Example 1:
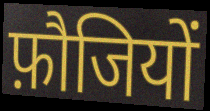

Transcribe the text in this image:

फ़ौजियों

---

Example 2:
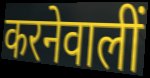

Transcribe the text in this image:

करनेवालीं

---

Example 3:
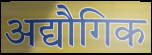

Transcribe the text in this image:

अद्यौगिक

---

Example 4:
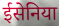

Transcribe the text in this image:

ईसेनिया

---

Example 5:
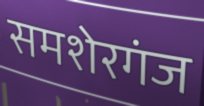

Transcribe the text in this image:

समशेरगंज